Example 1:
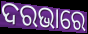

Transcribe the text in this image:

ଦରଭାରେ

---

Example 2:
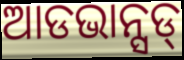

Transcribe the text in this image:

ଆଡଭାନ୍ସଡ୍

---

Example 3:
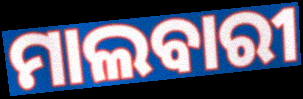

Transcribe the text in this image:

ମାଲବାରୀ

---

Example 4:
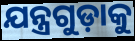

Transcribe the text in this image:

ଯନ୍ତ୍ରଗୁଡ଼ାକୁ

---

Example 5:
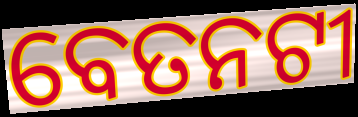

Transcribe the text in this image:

ବେତନଟୀ